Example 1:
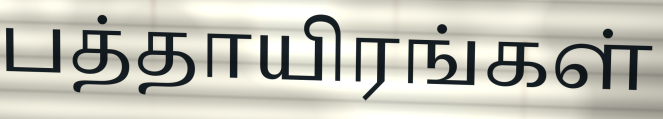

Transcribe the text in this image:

பத்தாயிரங்கள்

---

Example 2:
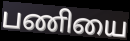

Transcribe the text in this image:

பணியை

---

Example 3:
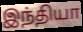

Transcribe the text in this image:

இந்தியா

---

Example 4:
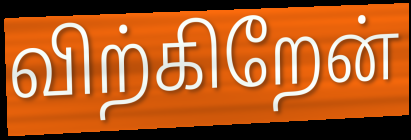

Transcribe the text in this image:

விற்கிறேன்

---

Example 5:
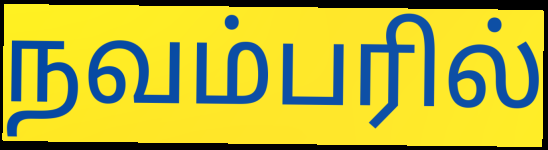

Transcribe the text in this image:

நவம்பரில்